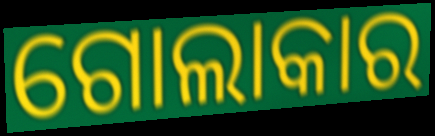
ଗୋଲାକାର